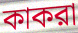
কাকরা